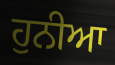
ਹੁਨੀਆ